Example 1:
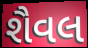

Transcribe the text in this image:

શૈવલ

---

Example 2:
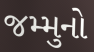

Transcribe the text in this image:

જમ્મુનો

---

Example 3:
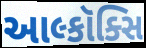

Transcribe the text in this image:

આલ્કૉક્સિ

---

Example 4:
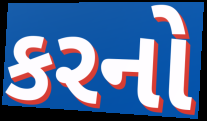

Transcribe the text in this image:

કરનો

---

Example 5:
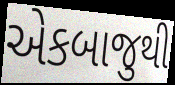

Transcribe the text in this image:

એકબાજુથી